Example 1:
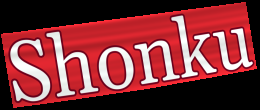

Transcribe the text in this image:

Shonku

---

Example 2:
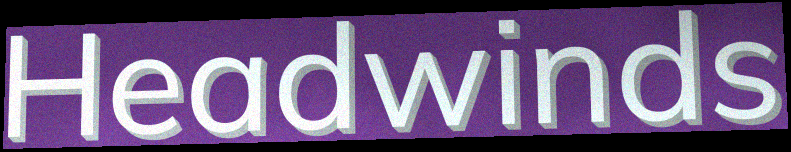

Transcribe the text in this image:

Headwinds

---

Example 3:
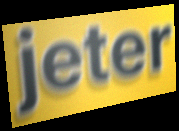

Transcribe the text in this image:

jeter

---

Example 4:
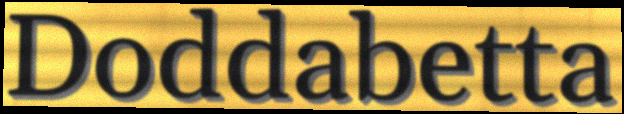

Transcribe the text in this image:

Doddabetta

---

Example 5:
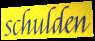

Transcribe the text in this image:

schulden